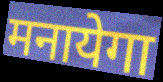
मनायेगा